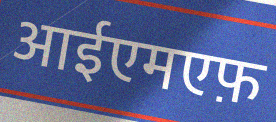
आईएमएफ़